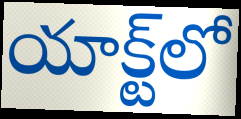
యాక్ట్‌లో